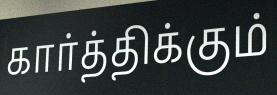
கார்த்திக்கும்